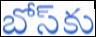
బోస్‌కు